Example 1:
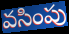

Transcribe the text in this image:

వసింపు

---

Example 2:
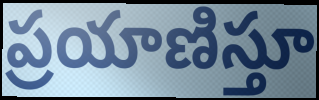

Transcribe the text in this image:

ప్రయాణిస్తూ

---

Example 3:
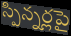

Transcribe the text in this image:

స్పిన్నర్లపై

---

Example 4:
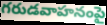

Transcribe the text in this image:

గరుడవాహనంపై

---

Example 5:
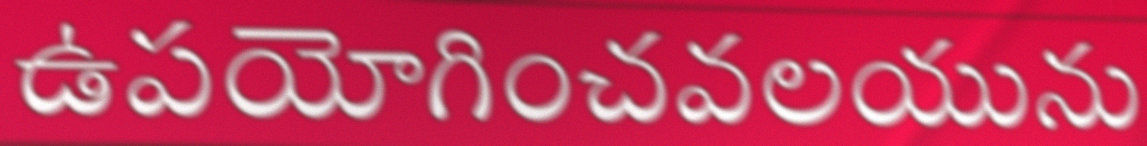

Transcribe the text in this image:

ఉపయోగించవలయును